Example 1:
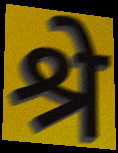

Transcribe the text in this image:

श्रे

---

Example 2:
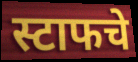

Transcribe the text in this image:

स्टाफचे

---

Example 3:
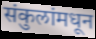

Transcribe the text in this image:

संकुलांमधून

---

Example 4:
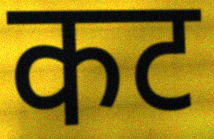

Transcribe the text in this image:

कट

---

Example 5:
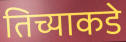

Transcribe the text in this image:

तिच्याकडे